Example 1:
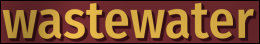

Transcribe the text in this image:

wastewater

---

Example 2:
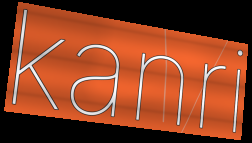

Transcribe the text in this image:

kanri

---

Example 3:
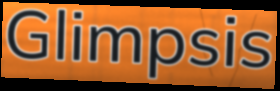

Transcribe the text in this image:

Glimpsis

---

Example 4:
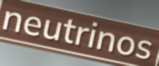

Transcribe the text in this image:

neutrinos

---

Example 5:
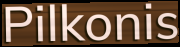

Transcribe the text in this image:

Pilkonis